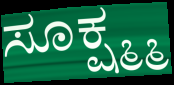
ಸೂಕ್ಷ್ಮ್ಮ